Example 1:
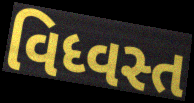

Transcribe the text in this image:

વિધ્વસ્ત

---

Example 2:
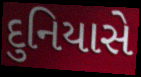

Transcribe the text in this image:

દુનિયાસે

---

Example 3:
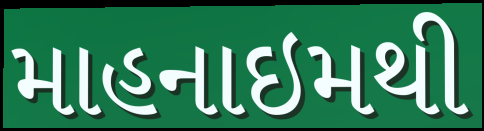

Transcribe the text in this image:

માહનાઇમથી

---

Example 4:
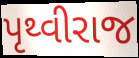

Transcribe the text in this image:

પૃથ્વીરાજ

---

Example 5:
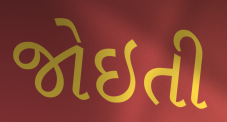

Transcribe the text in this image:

જોઇતી